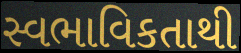
સ્વભાવિકતાથી